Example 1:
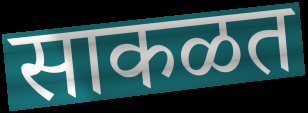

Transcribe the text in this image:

साकळत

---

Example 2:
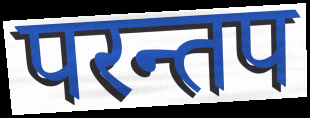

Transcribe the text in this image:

परन्तप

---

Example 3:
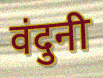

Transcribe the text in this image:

वंदुनी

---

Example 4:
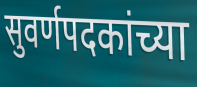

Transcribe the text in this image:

सुवर्णपदकांच्या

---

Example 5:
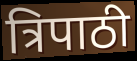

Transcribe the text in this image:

त्रिपाठी